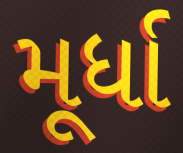
મૂર્ધા